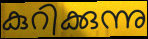
കുറിക്കുന്നു